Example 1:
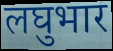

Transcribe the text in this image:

लघुभार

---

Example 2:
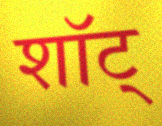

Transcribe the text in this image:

शॉट्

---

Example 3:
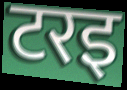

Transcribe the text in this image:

टरइ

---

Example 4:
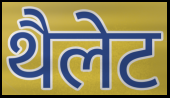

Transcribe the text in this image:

थैलेट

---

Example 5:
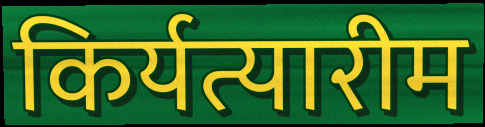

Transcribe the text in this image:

किर्यत्यारीम